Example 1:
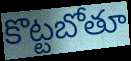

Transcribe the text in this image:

కొట్టబోతూ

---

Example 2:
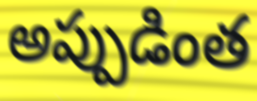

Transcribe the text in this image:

అప్పుడింత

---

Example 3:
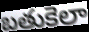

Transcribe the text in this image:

బతుకెలా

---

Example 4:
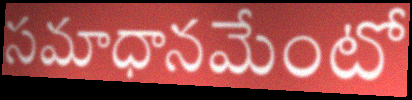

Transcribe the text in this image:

సమాధానమేంటో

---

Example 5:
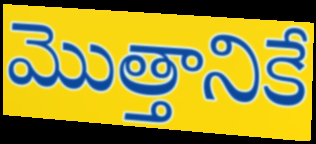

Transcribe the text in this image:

మొత్తానికే